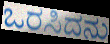
ಒರಸಿದನು